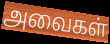
அவைகள்